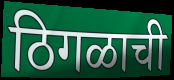
ठिगळाची